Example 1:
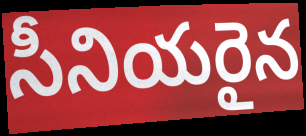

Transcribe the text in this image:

సీనియరైన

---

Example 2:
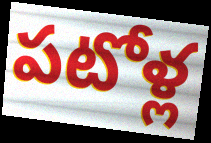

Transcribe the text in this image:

పటోళ్ల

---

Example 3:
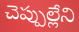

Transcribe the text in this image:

చెప్పుల్లేని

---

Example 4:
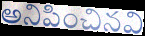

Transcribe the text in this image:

అనిపించినవి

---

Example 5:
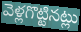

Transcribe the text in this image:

వెళ్లగొట్టినట్లు